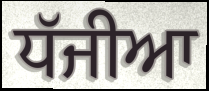
ਧੱਜੀਆ